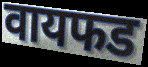
वायफड